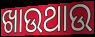
ଖାଉଥାଉ